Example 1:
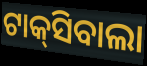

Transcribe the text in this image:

ଟାକ୍‌ସିବାଲା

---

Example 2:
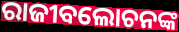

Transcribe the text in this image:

ରାଜୀବଲୋଚନଙ୍କ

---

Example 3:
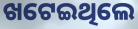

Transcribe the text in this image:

ଖଟେଇଥିଲେ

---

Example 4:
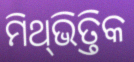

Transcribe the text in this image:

ମିଥ୍‍ଭିତ୍ତିକ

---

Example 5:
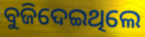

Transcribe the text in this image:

ବୁଜିଦେଇଥିଲେ